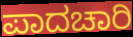
ಪಾದಚಾರಿ